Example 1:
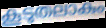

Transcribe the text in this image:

കൂടുതലാകും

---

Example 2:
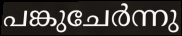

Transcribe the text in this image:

പങ്കുചേർന്നു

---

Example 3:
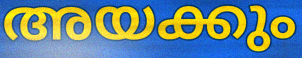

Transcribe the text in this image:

അയക്കും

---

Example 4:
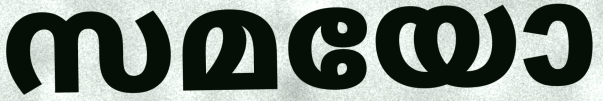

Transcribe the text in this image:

സമയോ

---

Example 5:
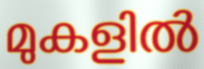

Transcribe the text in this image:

മുകളിൽ